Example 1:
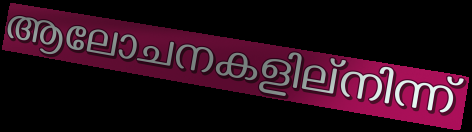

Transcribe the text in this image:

ആലോചനകളില്നിന്ന്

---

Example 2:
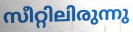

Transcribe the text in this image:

സീറ്റിലിരുന്നു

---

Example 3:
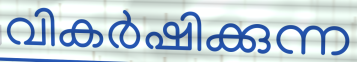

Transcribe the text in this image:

വികർഷിക്കുന്ന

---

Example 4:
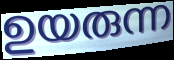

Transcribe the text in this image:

ഉയരുന്ന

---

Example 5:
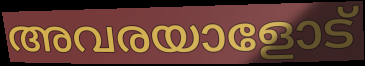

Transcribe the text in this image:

അവരയാളോട്